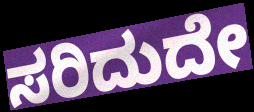
ಸರಿದುದೇ